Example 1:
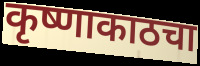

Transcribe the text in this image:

कृष्णाकाठचा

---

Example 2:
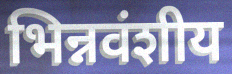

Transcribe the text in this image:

भिन्नवंशीय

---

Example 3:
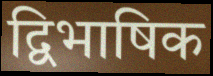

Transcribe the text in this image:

द्विभाषिक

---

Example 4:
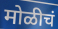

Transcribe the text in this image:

मोळीचं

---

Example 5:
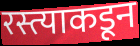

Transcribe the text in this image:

रस्त्याकडून